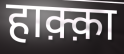
हाक़्क़ा